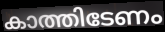
കാത്തിടേണം